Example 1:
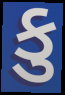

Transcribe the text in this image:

કુ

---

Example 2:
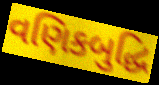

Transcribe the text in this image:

વણિકબુદ્ધિ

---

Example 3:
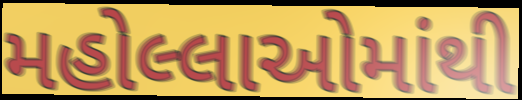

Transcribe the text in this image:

મહોલ્લાઓમાંથી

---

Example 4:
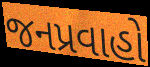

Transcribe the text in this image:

જનપ્રવાહો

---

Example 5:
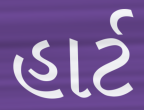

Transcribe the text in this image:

હાર્ટ